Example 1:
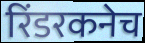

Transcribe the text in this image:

रिंडरकनेच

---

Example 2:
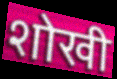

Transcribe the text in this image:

शोखी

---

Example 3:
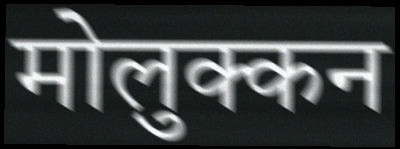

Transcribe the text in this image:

मोलुक्कन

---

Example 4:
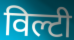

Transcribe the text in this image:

विल्टी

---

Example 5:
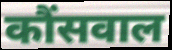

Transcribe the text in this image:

कौंसवाल